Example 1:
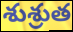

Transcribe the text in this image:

శుశ్రుత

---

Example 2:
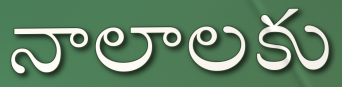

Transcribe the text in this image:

నాలాలకు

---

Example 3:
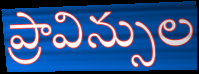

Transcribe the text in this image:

ప్రావిన్సుల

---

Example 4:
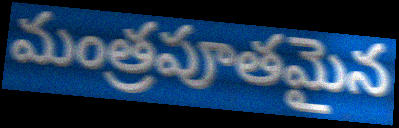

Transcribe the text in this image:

మంత్రపూతమైన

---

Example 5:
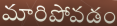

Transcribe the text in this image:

మారిపోవడం